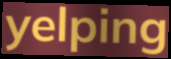
yelping